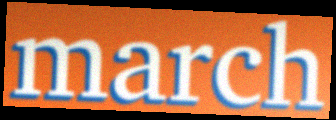
march